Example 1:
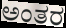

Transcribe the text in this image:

ಅಂತರ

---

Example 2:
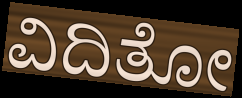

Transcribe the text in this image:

ವಿದಿತೋ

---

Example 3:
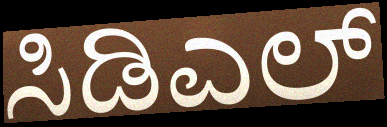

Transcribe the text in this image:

ಸಿಡಿಎಲ್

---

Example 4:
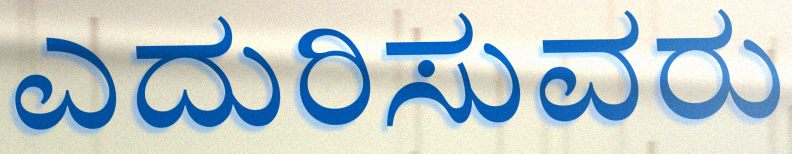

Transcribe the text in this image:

ಎದುರಿಸುವರು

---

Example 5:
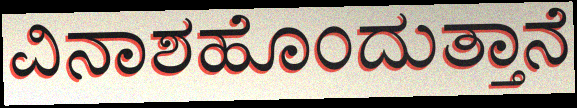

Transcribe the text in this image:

ವಿನಾಶಹೊಂದುತ್ತಾನೆ